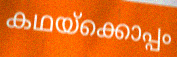
കഥയ്ക്കൊപ്പം